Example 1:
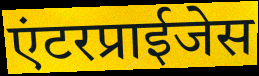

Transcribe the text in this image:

एंटरप्राईजेस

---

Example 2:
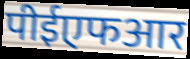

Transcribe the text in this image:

पीईएफआर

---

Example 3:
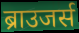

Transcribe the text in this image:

ब्राउजर्स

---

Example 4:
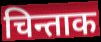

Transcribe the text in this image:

चिन्ताक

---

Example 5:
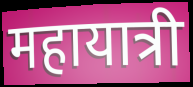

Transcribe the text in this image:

महायात्री